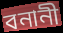
বনানী